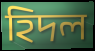
হিদল